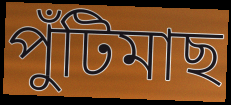
পুঁটিমাছ